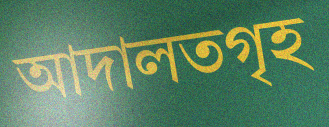
আদালতগৃহ